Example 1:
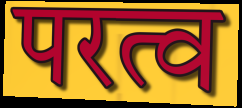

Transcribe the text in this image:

परत्व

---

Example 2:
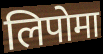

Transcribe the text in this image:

लिपोमा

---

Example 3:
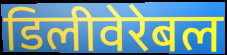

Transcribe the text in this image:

डिलीवेरेबल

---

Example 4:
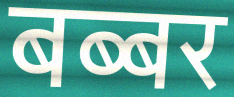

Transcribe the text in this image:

बब्बर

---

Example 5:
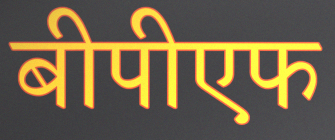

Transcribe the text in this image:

बीपीएफ